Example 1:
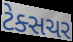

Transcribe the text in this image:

ટેક્સચર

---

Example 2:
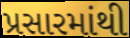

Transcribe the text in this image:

પ્રસારમાંથી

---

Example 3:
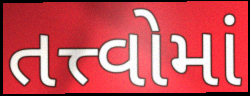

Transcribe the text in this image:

તત્ત્વોમાં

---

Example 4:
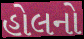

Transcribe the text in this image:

હોલનો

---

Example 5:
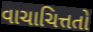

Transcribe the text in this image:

વાચાચિત્તતો